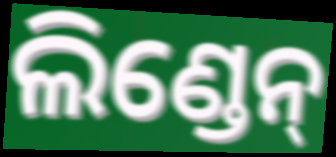
ଲିଣ୍ଡେନ୍